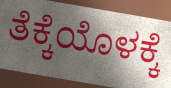
ತೆಕ್ಕೆಯೊಳಕ್ಕೆ